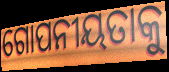
ଗୋପନୀୟତାକୁ